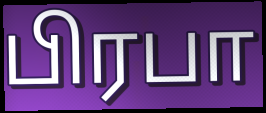
பிரபா